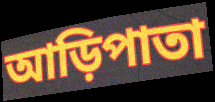
আড়িপাতা